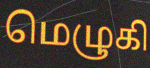
மெழுகி